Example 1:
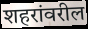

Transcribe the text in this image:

शहरांवरील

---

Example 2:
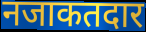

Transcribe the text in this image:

नजाकतदार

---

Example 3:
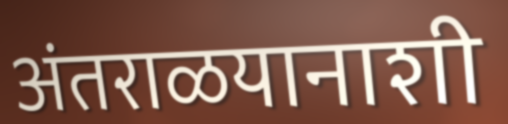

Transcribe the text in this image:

अंतराळयानाशी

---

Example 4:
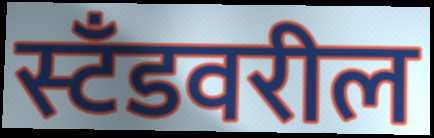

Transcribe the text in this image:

स्टँडवरील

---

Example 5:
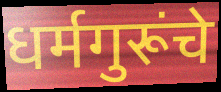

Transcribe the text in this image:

धर्मगुरूंचे